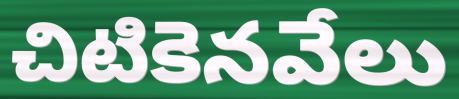
చిటికెనవేలు